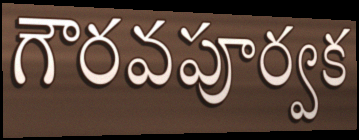
గౌరవపూర్వక